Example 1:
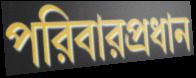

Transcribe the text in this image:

পরিবারপ্রধান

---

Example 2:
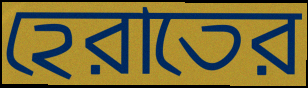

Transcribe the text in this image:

হেরাতের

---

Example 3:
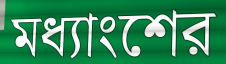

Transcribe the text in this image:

মধ্যাংশের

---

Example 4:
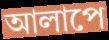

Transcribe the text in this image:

আলাপে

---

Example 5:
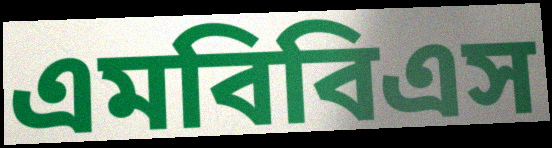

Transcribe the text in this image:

এমবিবিএস